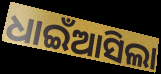
ଧାଇଁଆସିଲା